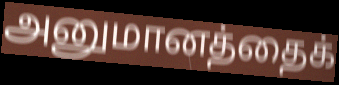
அனுமானத்தைக்